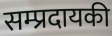
सम्प्रदायकी